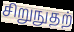
சிறுநுதற்